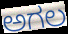
ಅಗಲ